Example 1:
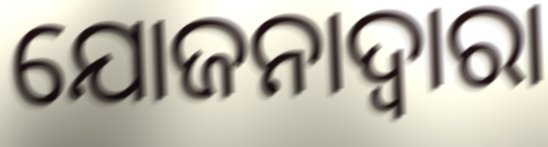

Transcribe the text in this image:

ଯୋଜନାଦ୍ୱାରା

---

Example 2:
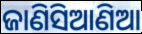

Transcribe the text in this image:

ଜାଣିସିଆଣିଆ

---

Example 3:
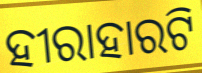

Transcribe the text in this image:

ହୀରାହାରଟି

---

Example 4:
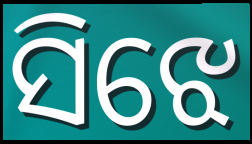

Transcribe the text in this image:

ସିଝେ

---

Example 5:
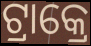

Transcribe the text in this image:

ଟ୍ରାକ୍ରେ